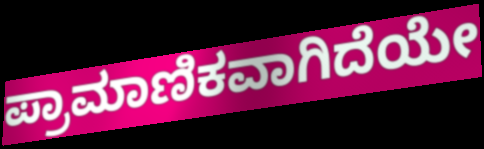
ಪ್ರಾಮಾಣಿಕವಾಗಿದೆಯೇ